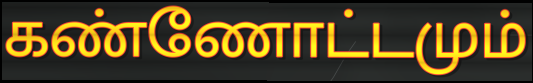
கண்ணோட்டமும்